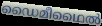
ഡൈമീഥൈൽ